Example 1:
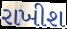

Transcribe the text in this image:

રાખીશ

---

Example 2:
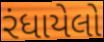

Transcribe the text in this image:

રંધાયેલો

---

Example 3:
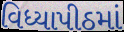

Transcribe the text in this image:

વિધ્યાપીઠમાં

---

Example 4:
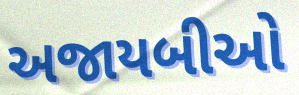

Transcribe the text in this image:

અજાયબીઓ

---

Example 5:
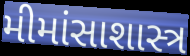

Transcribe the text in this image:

મીમાંસાશાસ્ત્ર